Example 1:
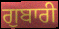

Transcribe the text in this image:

ਗੁਬਾਰੀ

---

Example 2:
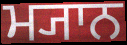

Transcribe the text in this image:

ਮ੍ਯਾਨ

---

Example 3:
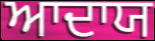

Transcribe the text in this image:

ਆਦਾਯ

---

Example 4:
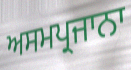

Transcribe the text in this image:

ਅਸਮਪ੍ਰਜਾਨਾ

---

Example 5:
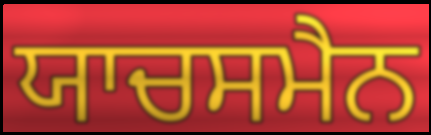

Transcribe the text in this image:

ਯਾਚਸਮੈਨ